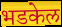
भडकेल